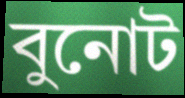
বুনোট